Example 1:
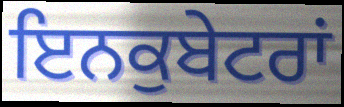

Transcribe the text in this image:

ਇਨਕੁਬੇਟਰਾਂ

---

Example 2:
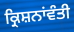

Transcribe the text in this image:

ਕ੍ਰਿਸ਼ਨਾਂਵੰਤੀ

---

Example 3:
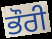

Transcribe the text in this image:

ਭੌਰੀ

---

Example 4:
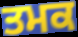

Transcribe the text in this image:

ਤਮਕ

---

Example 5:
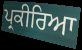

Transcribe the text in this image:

ਪ੍ਰਕੀਰਿਆ